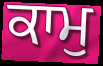
ਕਾਮੁ